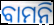
ବାମନି